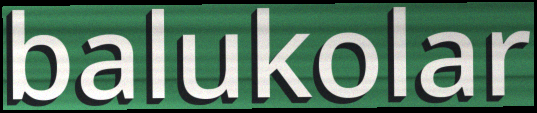
balukolar